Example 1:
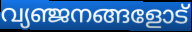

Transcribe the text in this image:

വ്യഞ്ജനങ്ങളോട്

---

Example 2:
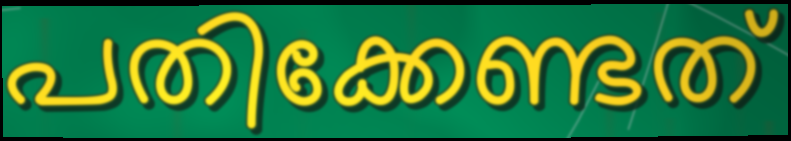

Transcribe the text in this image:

പതിക്കേണ്ടത്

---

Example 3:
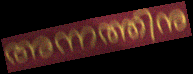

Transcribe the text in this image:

അന്നത്തിനു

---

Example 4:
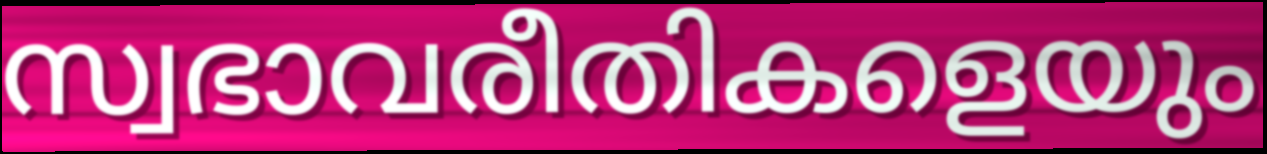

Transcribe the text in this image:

സ്വഭാവരീതികളെയും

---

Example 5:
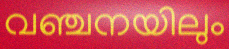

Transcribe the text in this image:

വഞ്ചനയിലും